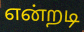
என்றடி